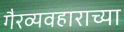
गैरव्यवहाराच्या